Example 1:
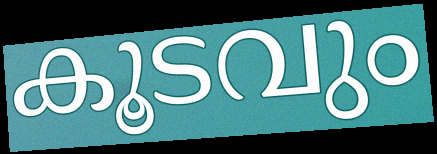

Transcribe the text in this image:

കൂടവും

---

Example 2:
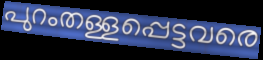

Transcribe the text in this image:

പുറംതള്ളപ്പെട്ടവരെ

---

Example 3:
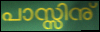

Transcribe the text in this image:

പാസ്സിനു്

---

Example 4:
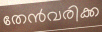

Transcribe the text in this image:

തേൻവരിക്ക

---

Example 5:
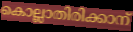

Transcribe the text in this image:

കൊല്ലാതിരിക്കാന്